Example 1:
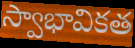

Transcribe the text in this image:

స్వాభావికత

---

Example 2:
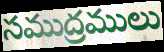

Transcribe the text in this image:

సముద్రములు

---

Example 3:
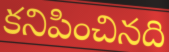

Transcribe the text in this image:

కనిపించినది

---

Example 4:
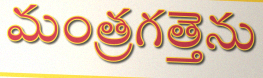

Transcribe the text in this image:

మంత్రగత్తెను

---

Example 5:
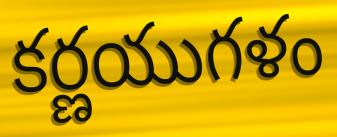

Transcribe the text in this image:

కర్ణయుగళం